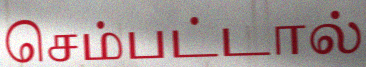
செம்பட்டால்